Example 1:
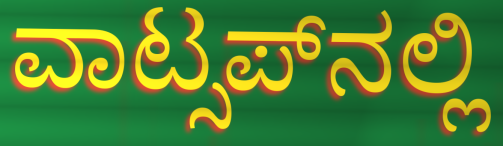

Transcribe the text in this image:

ವಾಟ್ಸಪ್‍ನಲ್ಲಿ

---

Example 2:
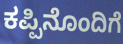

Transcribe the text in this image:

ಕಪ್ಪಿನೊಂದಿಗೆ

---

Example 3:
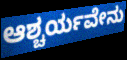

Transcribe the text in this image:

ಆಶ್ಚರ್ಯವೇನು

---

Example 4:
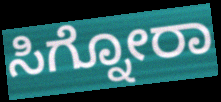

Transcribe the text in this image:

ಸಿಗ್ನೋರಾ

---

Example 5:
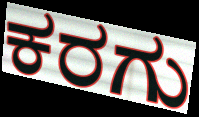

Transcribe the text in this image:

ಕರಗು